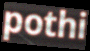
pothi